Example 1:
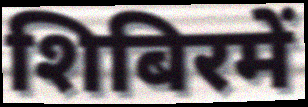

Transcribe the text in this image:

शिबिरमें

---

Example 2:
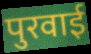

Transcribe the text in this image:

पुरवाई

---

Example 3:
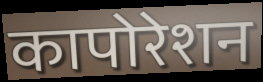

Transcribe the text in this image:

कापोरेशन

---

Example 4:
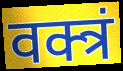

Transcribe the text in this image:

वक्त्रं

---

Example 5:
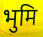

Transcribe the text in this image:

भुमि